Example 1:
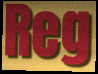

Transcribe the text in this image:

Reg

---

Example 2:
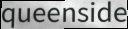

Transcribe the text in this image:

queenside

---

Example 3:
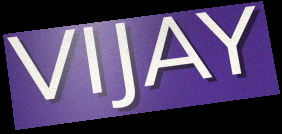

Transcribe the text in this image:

VIJAY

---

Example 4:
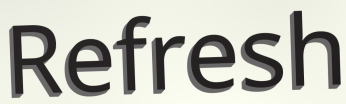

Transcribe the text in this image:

Refresh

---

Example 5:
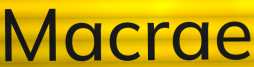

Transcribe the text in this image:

Macrae